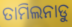
ତାମିଲନାଡୁ